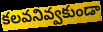
కలవనివ్వకుండా